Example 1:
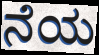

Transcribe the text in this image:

ನೆಯ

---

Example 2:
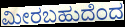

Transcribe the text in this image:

ಮೀರಬಹುದೆಂದ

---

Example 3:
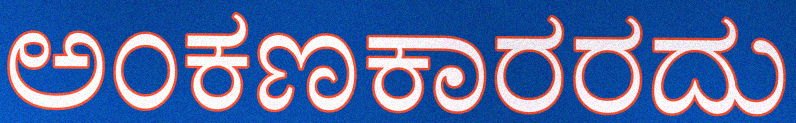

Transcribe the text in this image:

ಅಂಕಣಕಾರರದು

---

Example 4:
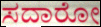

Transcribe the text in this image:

ಸದಾರೋ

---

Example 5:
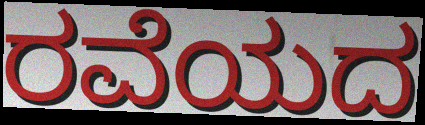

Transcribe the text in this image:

ರವೆಯದ